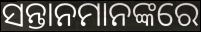
ସନ୍ତାନମାନଙ୍କରେ